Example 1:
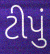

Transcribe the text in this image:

ટીપું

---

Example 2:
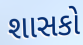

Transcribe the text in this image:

શાસકો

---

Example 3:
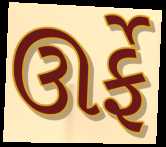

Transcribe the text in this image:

ઊર્ફે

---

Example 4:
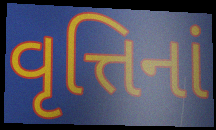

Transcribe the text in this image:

વૃત્તિનાં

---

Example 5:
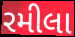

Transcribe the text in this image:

રમીલા